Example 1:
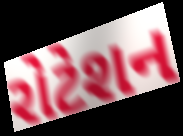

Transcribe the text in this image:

રોટેશન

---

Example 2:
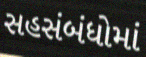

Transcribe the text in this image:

સહસંબંધોમાં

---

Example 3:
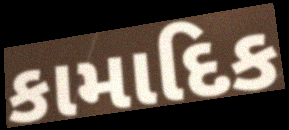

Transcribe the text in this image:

કામાદિક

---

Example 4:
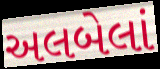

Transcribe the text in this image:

અલબેલાં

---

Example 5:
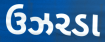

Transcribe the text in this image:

ઉઝરડા